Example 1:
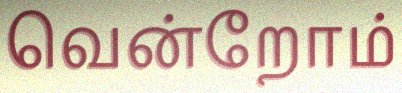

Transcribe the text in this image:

வென்றோம்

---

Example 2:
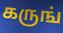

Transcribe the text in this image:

கருங்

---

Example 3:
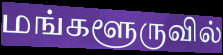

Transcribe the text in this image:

மங்களூருவில்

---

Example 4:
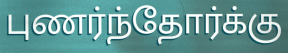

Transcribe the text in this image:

புணர்ந்தோர்க்கு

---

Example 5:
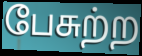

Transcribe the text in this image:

பேசுற்ற